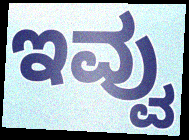
ಇವ್ವು